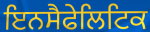
ਇਨਸੈਫੇਲਿਟਿਕ